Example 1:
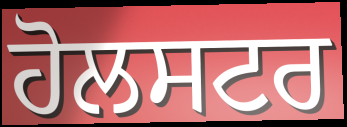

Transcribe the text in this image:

ਹੋਲਸਟਰ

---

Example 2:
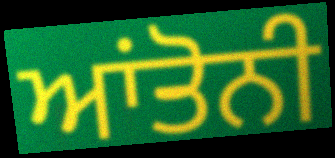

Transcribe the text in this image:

ਆਂਤੋਨੀ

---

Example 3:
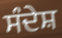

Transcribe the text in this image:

ਸੰਦੇਸ਼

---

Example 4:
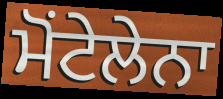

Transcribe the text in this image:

ਮੋਂਟੇਲੇਨਾ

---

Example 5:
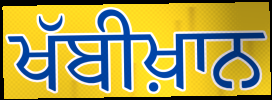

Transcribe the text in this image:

ਖੱਬੀਖ਼ਾਨ